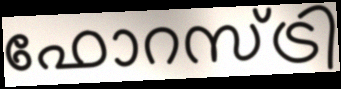
ഫോറസ്ട്രി